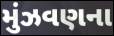
મુંઝવણના